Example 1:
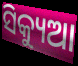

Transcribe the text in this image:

ସିକ୍ୟୁଆ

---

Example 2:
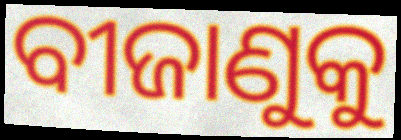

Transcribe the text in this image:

ବୀଜାଣୁକୁ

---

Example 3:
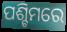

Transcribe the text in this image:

ପଶ୍ଚିମରେ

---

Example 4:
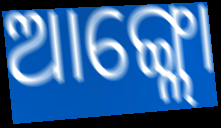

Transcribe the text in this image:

ଆଙ୍ଗ୍ଲୋ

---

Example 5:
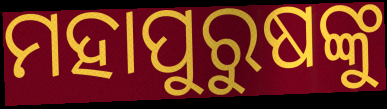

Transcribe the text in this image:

ମହାପୁରୁଷଙ୍କୁ